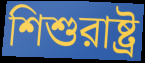
শিশুরাষ্ট্র